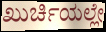
ಖುರ್ಚಿಯಲ್ಲೇ